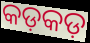
କଡ଼କଡ଼